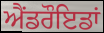
ਐਂਡਰੌਇਡਾਂ